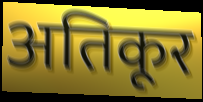
अतिकूर